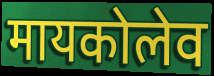
मायकोलेव